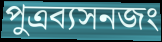
পুত্রব্যসনজং